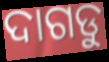
ଦାଗଡୁ